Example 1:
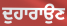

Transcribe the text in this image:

ਦੁਹਾਰਾਉਣ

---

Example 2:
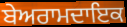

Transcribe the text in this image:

ਬੇਅਰਾਮਦਾਇਕ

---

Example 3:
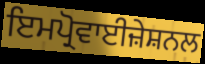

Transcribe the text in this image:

ਇਮਪ੍ਰੋਵਾਈਜ਼ੇਸ਼ਨਲ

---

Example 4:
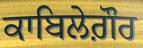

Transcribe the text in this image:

ਕਾਬਿਲੇਗ਼ੌਰ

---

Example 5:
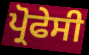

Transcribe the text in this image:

ਪ੍ਰੋਫੇਸੀ